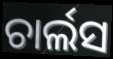
ଚାର୍ଲସ